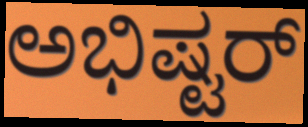
ಅಭಿಷ್ಟರ್